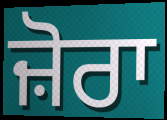
ਜ਼ੋਰਾ